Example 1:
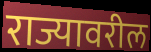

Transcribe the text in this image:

राज्यावरील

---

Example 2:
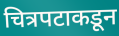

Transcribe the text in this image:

चित्रपटाकडून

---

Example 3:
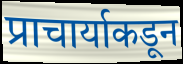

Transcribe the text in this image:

प्राचार्याकडून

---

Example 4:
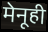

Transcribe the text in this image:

मेनूही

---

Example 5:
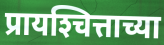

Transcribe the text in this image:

प्रायश्‍चित्ताच्या